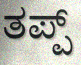
ತಪ್ಪ್